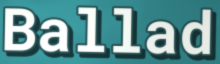
Ballad